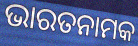
ଭାରତନାମକ